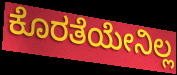
ಕೊರತೆಯೇನಿಲ್ಲ